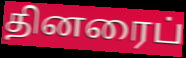
தினரைப்